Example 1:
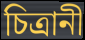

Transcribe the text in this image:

চিত্রানী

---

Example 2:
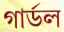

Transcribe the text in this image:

গার্ডল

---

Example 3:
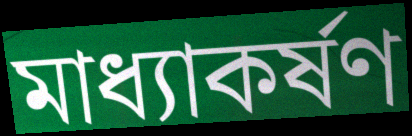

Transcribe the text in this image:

মাধ্যাকর্ষণ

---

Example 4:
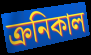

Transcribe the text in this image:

ক্রনিকাল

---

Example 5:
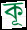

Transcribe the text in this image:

কূ